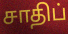
சாதிப்